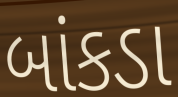
બાંકડા